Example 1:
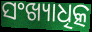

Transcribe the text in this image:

ସଂଖ୍ୟାଧିତ୍କ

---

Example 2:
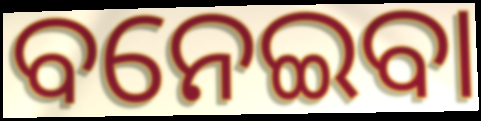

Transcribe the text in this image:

ବନେଇବା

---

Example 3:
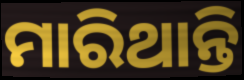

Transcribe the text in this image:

ମାରିଥାନ୍ତି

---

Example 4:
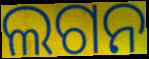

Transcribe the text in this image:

ଲଗନ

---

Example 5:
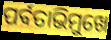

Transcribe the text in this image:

ପର୍ବତାଭିମୁଖେ